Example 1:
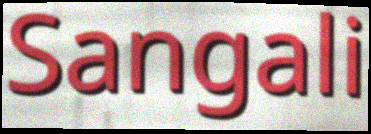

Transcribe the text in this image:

Sangali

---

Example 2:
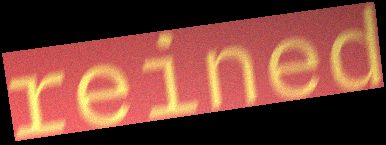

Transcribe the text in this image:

reined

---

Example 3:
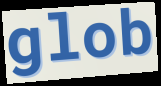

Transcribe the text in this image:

glob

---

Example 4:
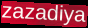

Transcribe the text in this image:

zazadiya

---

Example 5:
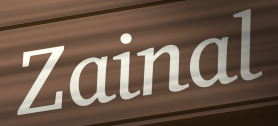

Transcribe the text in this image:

Zainal